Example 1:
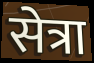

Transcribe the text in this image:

सेत्रा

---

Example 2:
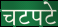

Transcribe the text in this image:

चटपटे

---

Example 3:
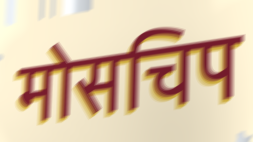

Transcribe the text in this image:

मोसचिप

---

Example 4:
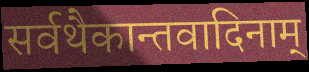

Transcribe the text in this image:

सर्वथैकान्तवादिनाम्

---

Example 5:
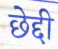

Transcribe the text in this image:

छेद्दी